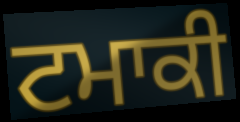
ਟਮਾਕੀ